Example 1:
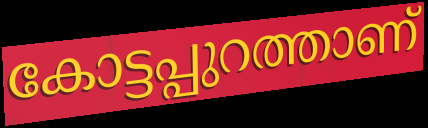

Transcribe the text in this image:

കോട്ടപ്പുറത്താണ്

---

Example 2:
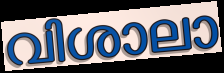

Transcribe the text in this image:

വിശാലാ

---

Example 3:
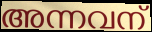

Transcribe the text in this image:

അന്നവന്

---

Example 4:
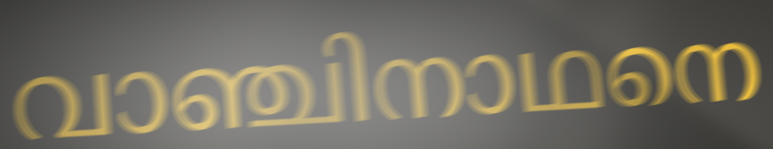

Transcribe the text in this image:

വാഞ്ചിനാഥനെ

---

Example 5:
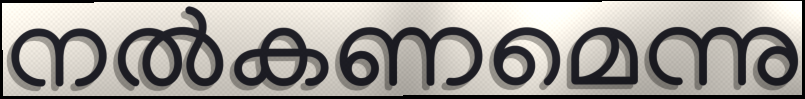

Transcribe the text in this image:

നൽകണമെന്നു